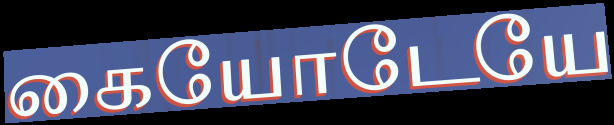
கையோடேயே